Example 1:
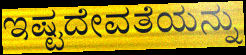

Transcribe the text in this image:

ಇಷ್ಟದೇವತೆಯನ್ನು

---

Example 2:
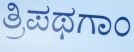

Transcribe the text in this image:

ತ್ರಿಪಥಗಾಂ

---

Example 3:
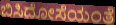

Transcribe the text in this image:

ಬಿಸಿದೋಸೆಯಂತೆ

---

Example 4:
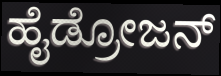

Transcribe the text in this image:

ಹೈಡ್ರೋಜನ್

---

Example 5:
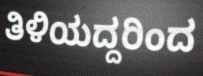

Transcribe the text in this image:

ತಿಳಿಯದ್ದರಿಂದ